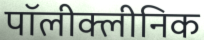
पॉलीक्लीनिक